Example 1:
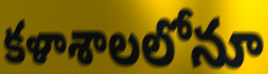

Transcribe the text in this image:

కళాశాలలోనూ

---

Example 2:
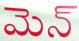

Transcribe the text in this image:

మెన్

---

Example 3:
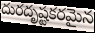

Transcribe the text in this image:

దురదృష్టకరమైన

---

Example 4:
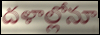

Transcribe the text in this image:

దళాల్లోనూ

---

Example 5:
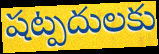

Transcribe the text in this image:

షట్పదులకు